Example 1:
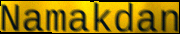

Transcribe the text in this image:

Namakdan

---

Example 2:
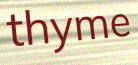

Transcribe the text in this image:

thyme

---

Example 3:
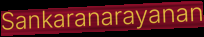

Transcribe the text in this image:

Sankaranarayanan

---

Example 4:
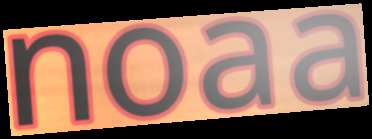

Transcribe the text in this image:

noaa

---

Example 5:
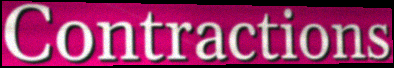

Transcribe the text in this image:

Contractions